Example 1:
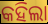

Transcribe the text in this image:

କହିଲା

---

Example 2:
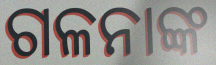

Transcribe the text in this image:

ଗଳନାଙ୍କ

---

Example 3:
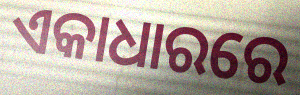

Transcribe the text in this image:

ଏକାଧାରରେ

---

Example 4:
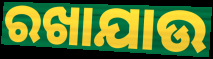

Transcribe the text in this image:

ରଖାଯାଉ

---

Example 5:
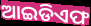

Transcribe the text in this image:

ଆଇଡିଏଫ